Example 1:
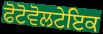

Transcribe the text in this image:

ਫੋਟੋਵੋਲਟੇਇਕ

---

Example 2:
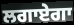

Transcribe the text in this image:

ਲਗਾਏਗਾ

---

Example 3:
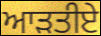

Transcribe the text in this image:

ਆੜਤੀਏ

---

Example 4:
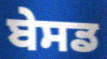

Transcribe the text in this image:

ਬੇਸਡ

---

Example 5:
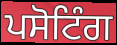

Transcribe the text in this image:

ਪਸੋਟਿੰਗ